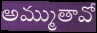
అమ్ముతావో